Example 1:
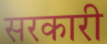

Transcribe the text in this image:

सरकारी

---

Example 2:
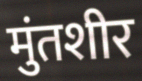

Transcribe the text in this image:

मुंतशीर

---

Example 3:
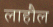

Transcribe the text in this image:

लाहौल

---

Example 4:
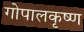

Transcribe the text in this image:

गोपालकृष्‍ण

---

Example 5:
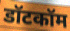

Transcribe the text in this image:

डॉटकॉम